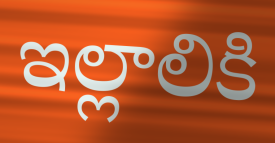
ఇల్లాలికి